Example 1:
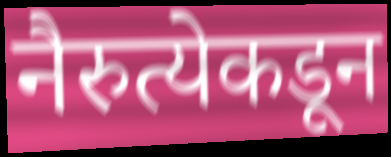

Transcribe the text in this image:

नैरुत्येकडून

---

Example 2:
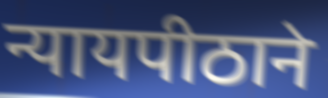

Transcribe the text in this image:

न्यायपीठाने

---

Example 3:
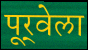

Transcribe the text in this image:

पूर्वेला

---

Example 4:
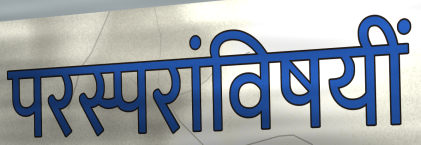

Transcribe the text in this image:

परस्परांविषयीं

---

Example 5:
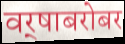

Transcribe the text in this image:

वर्षाबरोबर